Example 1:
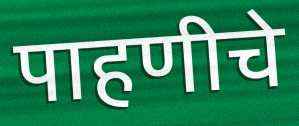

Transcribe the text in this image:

पाहणीचे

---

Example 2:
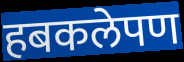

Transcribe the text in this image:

हबकलेपण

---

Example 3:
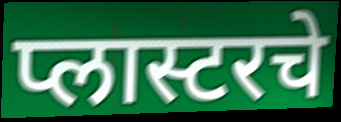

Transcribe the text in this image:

प्लास्टरचे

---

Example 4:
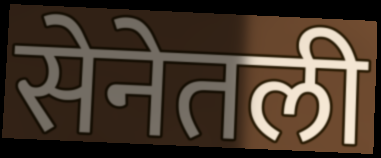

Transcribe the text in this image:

सेनेतली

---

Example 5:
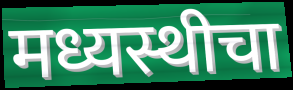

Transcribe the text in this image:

मध्यस्थीचा